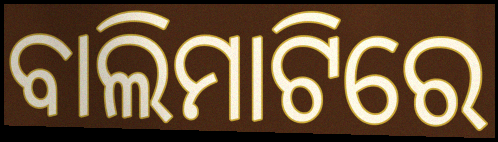
ବାଲିମାଟିରେ